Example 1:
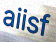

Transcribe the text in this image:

aiisf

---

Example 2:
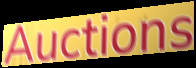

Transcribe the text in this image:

Auctions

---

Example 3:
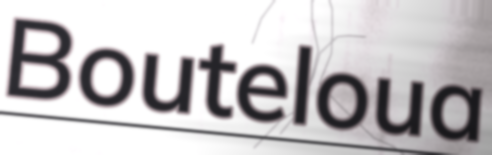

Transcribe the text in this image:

Bouteloua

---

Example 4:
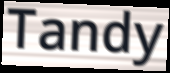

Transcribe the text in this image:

Tandy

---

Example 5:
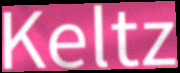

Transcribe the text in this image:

Keltz